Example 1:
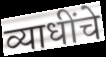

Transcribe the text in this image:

व्याधींचे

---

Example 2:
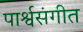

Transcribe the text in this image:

पार्श्वसंगीत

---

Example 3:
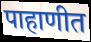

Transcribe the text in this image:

पाहाणीत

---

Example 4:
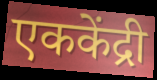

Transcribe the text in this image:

एककेंद्री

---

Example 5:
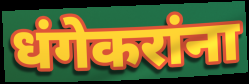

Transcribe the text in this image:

धंगेकरांना